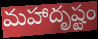
మహాదృష్టం